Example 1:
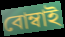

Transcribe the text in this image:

বোম্বাই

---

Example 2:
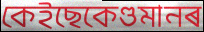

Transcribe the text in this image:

কেইছেকেণ্ডমানৰ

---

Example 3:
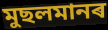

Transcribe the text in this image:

মুছলমানৰ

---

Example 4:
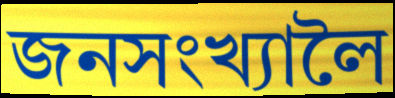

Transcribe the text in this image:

জনসংখ্যালৈ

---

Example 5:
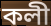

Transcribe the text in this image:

কলী